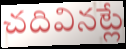
చదివినట్లే